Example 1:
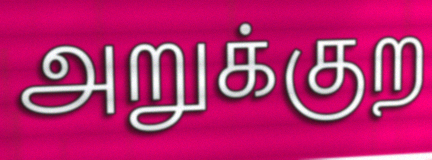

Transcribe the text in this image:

அறுக்குற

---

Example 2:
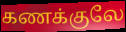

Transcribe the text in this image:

கணக்குலே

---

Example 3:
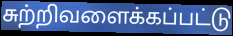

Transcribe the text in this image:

சுற்றிவளைக்கப்பட்டு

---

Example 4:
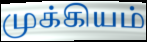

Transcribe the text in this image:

முக்கியம்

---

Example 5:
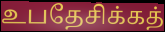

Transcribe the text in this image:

உபதேசிக்கத்